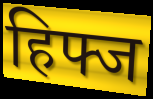
हिफ्ज